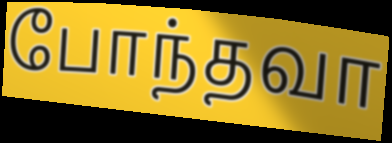
போந்தவா